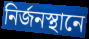
নির্জনস্থানে